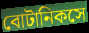
বোটানিকসে